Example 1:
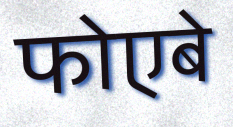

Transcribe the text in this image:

फोएबे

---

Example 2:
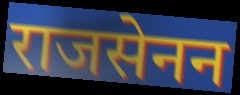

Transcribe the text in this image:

राजसेनन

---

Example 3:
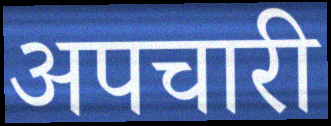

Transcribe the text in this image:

अपचारी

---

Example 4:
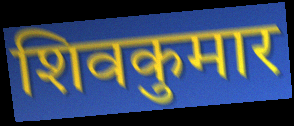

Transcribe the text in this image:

शिवकुमार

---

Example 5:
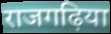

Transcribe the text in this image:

राजगढ़िया